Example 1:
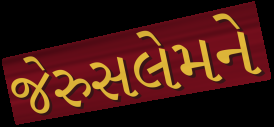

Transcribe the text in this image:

જેરુસલેમને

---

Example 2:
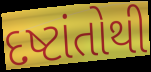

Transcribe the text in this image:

દષ્ટાંતોથી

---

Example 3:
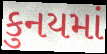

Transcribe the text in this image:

કુનયમાં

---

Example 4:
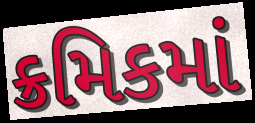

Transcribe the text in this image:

ક્રમિકમાં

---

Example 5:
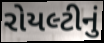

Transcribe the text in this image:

રોયલ્ટીનું